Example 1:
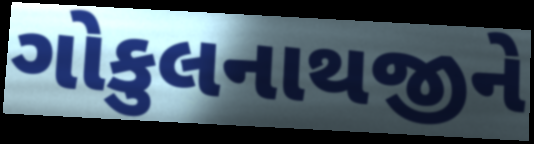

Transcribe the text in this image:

ગોકુલનાથજીને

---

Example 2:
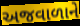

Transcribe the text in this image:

અજવાળાને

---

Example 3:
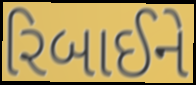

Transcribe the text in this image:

રિબાઈને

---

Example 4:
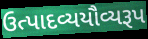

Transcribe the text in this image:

ઉત્પાદવ્યયૌવ્યરૂપ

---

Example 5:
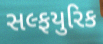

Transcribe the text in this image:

સલ્ફયુરિક